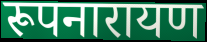
रूपनारायण